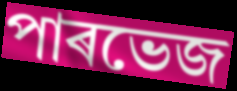
পাৰভেজ